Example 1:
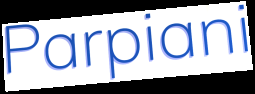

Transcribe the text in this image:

Parpiani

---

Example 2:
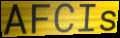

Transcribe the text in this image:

AFCIs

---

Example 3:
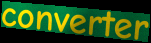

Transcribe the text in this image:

converter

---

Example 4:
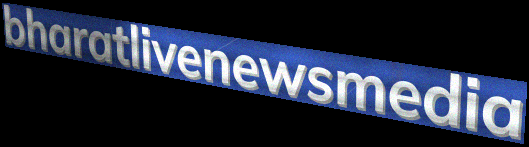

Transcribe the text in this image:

bharatlivenewsmedia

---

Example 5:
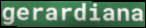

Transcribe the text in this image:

gerardiana